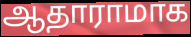
ஆதாராமாக